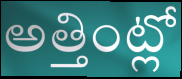
అత్తింట్లో